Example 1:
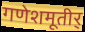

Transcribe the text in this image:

गणेशमूतीर्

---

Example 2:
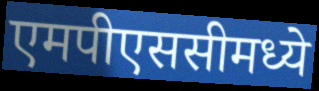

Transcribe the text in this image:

एमपीएससीमध्ये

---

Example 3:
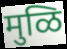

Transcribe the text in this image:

मुळि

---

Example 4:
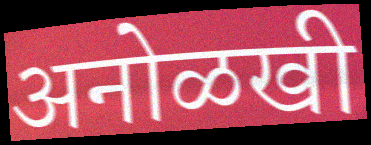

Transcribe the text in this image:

अनोळखी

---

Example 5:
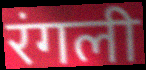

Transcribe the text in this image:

रंगली